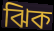
ঝিক